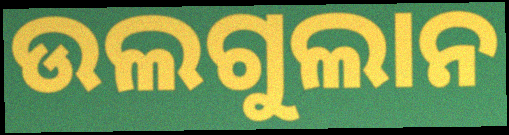
ଉଲଗୁଲାନ